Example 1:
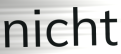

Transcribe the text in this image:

nicht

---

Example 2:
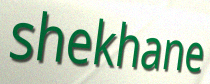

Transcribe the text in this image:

shekhane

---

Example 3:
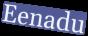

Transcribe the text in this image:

Eenadu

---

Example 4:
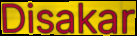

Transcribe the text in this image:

Disakar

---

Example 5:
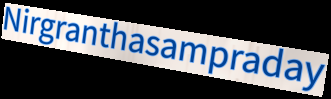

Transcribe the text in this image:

Nirgranthasampraday